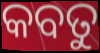
କବତୁ